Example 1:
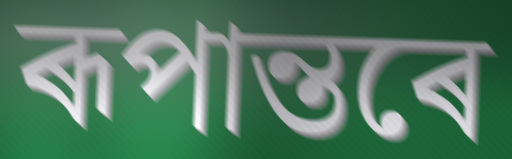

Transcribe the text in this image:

ৰূপান্তৰে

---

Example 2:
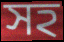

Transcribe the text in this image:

সহ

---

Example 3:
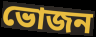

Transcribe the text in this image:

ভোজন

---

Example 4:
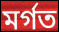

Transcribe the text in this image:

মৰ্গত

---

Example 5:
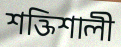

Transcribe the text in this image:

শক্তিশালী